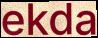
ekda